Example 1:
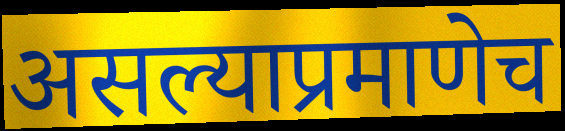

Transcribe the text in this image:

असल्याप्रमाणेच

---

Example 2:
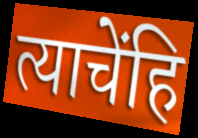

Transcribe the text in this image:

त्याचेंहि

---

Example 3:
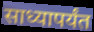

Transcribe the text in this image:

साध्यापर्यंत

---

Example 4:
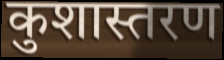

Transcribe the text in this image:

कुशास्तरण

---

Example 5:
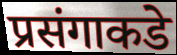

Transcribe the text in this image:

प्रसंगाकडे